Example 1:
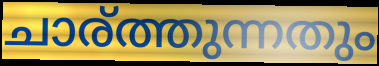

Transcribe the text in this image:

ചാര്ത്തുന്നതും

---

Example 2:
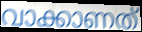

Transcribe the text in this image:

വാക്കാണത്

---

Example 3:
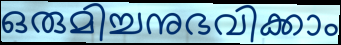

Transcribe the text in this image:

ഒരുമിച്ചനുഭവിക്കാം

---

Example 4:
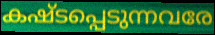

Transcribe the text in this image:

കഷ്ടപ്പെടുന്നവരേ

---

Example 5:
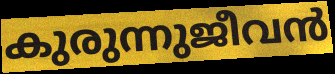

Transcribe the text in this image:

കുരുന്നുജീവൻ